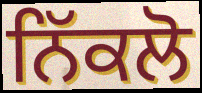
ਨਿੱਕਲੋ